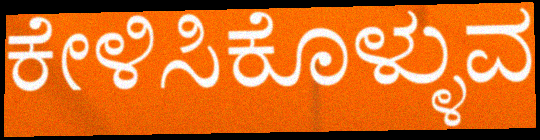
ಕೇಳಿಸಿಕೊಳ್ಳುವ